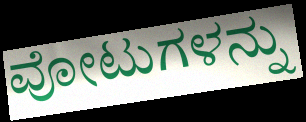
ವೋಟುಗಳನ್ನು